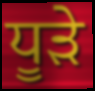
ਧੂੜੇ